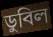
ডুবিল